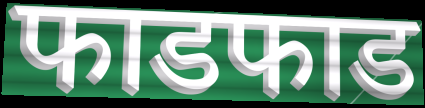
फाडफाड